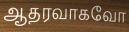
ஆதரவாகவோ